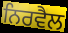
ਨਿਰਵੈਲ